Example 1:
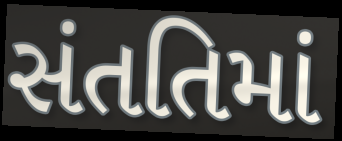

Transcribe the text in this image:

સંતતિમાં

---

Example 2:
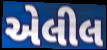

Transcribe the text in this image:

એલીલ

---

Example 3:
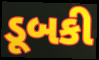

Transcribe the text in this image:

ડૂબકી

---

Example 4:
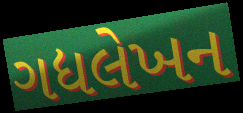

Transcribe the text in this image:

ગદ્યલેખન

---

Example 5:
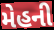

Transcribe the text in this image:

મેહની